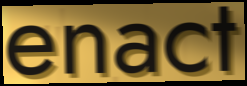
enact